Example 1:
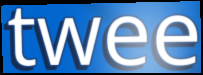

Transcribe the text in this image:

twee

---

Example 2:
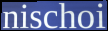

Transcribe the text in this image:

nischoi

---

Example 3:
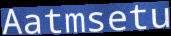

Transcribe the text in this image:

Aatmsetu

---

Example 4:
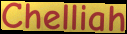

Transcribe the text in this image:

Chelliah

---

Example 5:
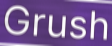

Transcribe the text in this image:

Grush